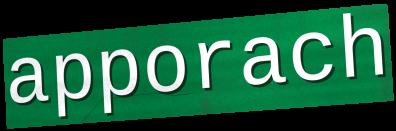
apporach